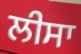
ਲੀਸਾ